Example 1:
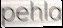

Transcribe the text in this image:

pehla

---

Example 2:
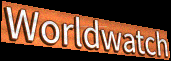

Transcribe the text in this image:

Worldwatch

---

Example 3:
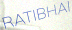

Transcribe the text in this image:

RATIBHAI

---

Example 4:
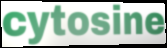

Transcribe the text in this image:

cytosine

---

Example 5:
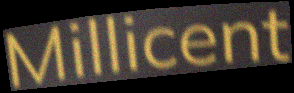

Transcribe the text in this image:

Millicent